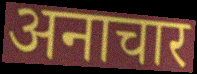
अनाचार